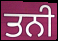
ਤਨੀ